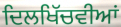
ਦਿਲਖਿੱਚਵੀਆਂ